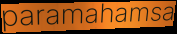
paramahamsa